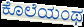
ಕೊಲೆಯಂಥ